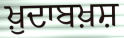
ਖ਼ੁਦਾਬਖ਼ਸ਼